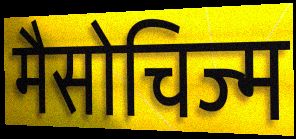
मैसोचिज्म